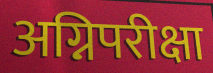
अग्निपरीक्षा